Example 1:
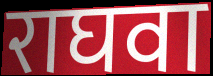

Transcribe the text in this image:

राघवा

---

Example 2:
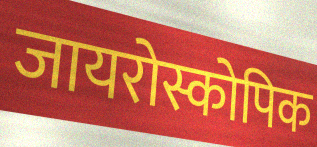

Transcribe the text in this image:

जायरोस्कोपिक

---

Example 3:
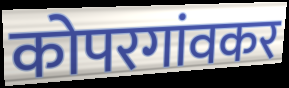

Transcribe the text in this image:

कोपरगांवकर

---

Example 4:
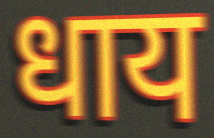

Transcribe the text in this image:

धाय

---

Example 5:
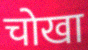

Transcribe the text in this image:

चोखा